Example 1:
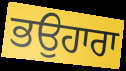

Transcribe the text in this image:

ਭਉਹਾਰਾ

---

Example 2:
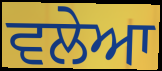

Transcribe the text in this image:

ਵਲੇਆ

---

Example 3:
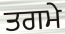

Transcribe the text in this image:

ਤਗਮੇ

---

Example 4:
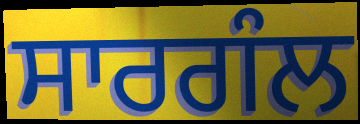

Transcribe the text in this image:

ਸਾਰਗੰਲ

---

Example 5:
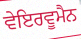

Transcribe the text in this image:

ਵੇਇਰਵੂਮੈਨ